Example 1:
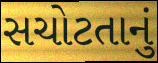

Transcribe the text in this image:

સચોટતાનું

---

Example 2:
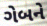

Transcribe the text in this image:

ગેબને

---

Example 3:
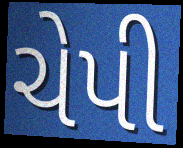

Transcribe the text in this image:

ચેપી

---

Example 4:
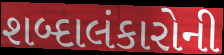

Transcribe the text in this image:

શબ્દાલંકારોની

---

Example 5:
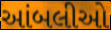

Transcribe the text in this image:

આંબલીઓ